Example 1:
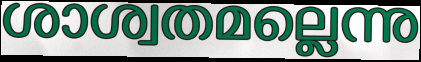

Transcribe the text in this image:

ശാശ്വതമല്ലെന്നു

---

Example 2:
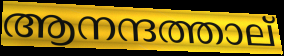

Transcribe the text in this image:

ആനന്ദത്താല്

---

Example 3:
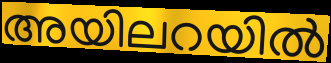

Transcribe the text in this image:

അയിലറയിൽ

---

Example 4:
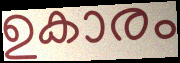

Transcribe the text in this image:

ഉകാരം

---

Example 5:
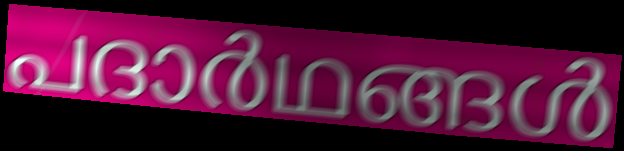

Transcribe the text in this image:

പദാർഥങ്ങൾ